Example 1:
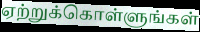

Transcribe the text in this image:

ஏற்றுக்கொள்ளுங்கள்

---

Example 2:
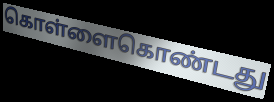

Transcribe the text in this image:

கொள்ளைகொண்டது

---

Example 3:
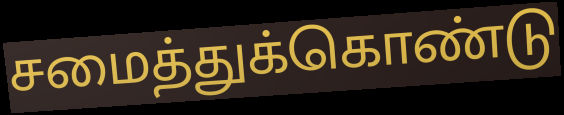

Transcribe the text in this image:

சமைத்துக்கொண்டு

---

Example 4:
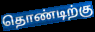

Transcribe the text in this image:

தொண்டிற்கு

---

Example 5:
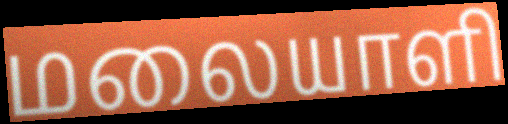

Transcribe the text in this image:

மலையாளி